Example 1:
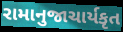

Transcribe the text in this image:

રામાનુજાચાર્યકૃત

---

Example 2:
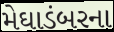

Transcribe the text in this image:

મેઘાડંબરના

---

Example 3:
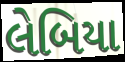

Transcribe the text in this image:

લેબિયા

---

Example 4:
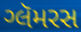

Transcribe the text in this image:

ગ્લૅમરસ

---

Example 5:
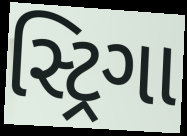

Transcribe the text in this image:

સ્ટ્રિગા